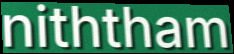
niththam